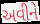
અવીને